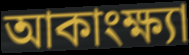
আকাংক্ষ্যা